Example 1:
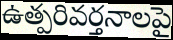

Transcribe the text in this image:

ఉత్పరివర్తనాలపై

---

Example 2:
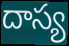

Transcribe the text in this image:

దాస్య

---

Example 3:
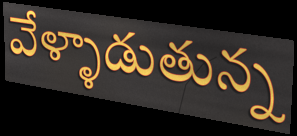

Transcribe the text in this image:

వేళ్ళాడుతున్న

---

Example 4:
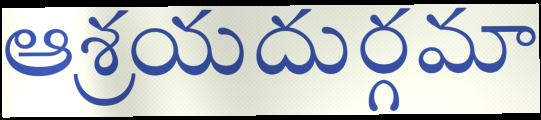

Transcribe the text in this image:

ఆశ్రయదుర్గమా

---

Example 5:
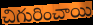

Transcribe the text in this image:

చిగురించాయి